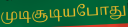
முடிசூடியபோது